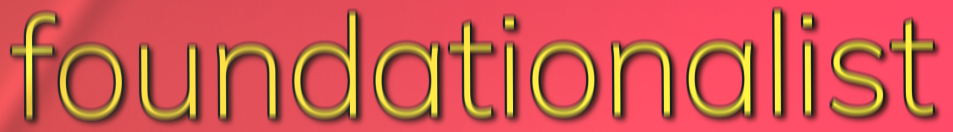
foundationalist